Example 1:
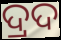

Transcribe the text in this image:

ଦ୍ରଦ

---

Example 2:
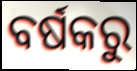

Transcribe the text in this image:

ବର୍ଷକରୁ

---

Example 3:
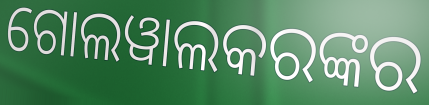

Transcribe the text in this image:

ଗୋଲୱାଲକରଙ୍କର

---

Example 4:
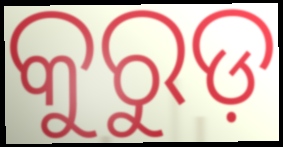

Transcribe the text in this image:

କୁରୁଡ଼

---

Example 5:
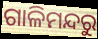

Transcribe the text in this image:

ଗାଳିମନ୍ଦରୁ